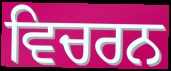
ਵਿਚਰਨ